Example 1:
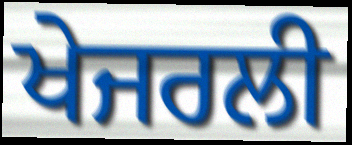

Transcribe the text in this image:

ਖੇਜਰਲੀ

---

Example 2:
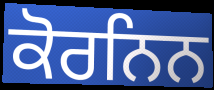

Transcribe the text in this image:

ਕੋਰਨਿਨ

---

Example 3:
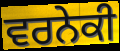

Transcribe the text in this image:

ਵਰਨੇਕੀ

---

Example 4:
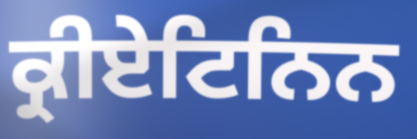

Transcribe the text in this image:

ਕ੍ਰੀਏਟਿਨਿਨ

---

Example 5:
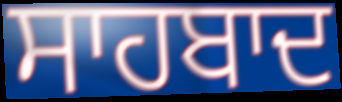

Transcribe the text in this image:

ਸਾਹਬਾਦ